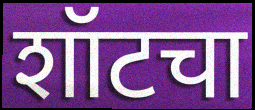
शॉटचा